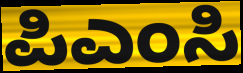
ಪಿಎಂಸಿ